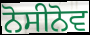
ਨੋਸੀਨੋਵ